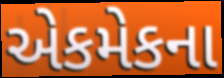
એકમેકના